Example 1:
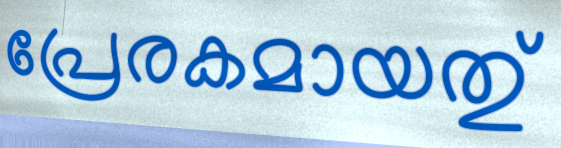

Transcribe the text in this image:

പ്രേരകമായതു്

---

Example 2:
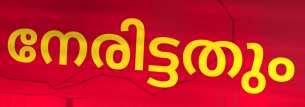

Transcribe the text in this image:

നേരിട്ടതും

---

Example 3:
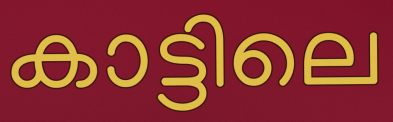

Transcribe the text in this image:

കാട്ടിലെ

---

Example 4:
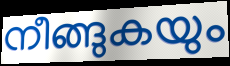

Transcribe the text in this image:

നീങ്ങുകയും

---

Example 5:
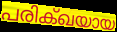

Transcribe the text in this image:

പരിക്ഖയായ